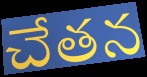
చేతన